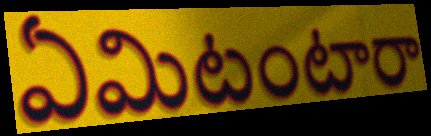
ఏమిటంటారా